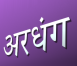
अरधंग